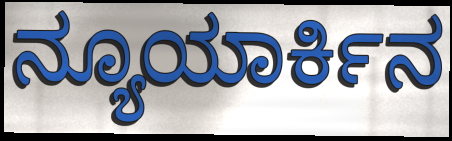
ನ್ಯೂಯಾರ್ಕಿನ